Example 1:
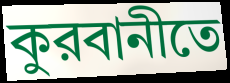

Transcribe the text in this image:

কুরবানীতে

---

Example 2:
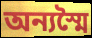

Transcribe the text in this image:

অন্যস্মৈ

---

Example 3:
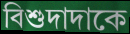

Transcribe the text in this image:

বিশুদাদাকে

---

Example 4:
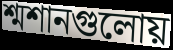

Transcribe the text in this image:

শ্মশানগুলোয়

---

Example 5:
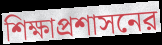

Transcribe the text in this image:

শিক্ষাপ্রশাসনের